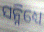
ସନ୍ନିଧ୍ୟେ